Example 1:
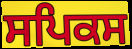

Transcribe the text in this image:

ਸਪਿਕਸ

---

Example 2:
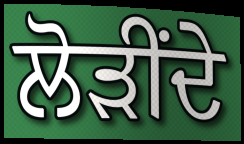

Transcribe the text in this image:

ਲੋੜੀਂਦੇ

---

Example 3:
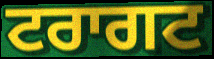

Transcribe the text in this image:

ਟਰਾਗਟ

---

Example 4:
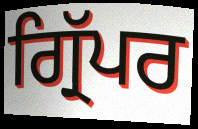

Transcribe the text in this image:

ਗ੍ਰਿੱਪਰ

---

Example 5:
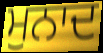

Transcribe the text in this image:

ਮੁਨਾਦ